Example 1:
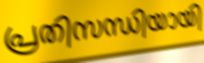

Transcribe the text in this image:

പ്രതിസന്ധിയായി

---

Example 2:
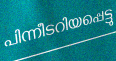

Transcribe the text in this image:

പിന്നീടറിയപ്പെട്ടു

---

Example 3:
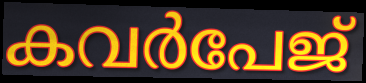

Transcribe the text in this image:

കവർപേജ്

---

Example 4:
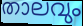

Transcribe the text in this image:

താലവും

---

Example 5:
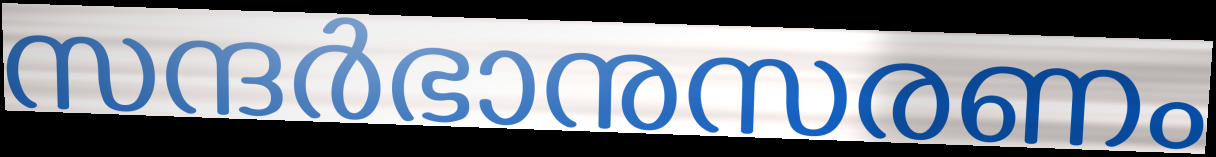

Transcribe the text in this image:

സന്ദർഭാനുസരണം